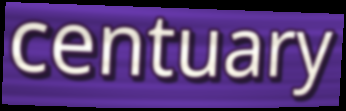
centuary